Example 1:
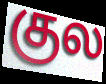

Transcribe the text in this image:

குல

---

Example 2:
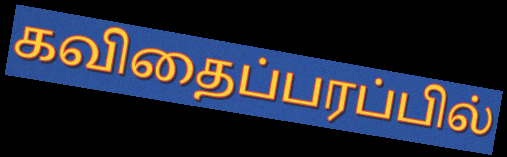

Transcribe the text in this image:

கவிதைப்பரப்பில்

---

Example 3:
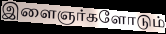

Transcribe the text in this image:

இளைஞர்களோடும்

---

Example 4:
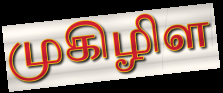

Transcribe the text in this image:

முகிழிள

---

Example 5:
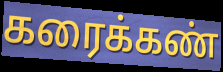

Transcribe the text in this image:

கரைக்கண்